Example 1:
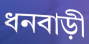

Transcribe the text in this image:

ধনবাড়ী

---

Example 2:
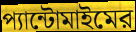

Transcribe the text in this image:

প্যান্টোমাইমের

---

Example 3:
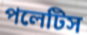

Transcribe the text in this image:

পলেটিস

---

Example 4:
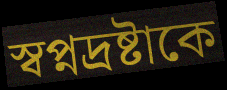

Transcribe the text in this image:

স্বপ্নদ্রষ্টাকে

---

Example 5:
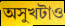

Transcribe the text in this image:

অসুখটাও